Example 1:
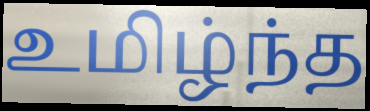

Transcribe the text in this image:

உமிழ்ந்த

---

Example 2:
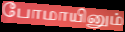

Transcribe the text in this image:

போமாயினும்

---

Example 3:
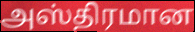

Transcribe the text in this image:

அஸ்திரமான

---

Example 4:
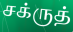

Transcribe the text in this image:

சக்ருத்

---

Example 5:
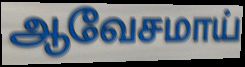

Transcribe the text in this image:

ஆவேசமாய்